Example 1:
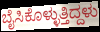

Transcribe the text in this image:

ಬೈಸಿಕೊಳ್ಳುತ್ತಿದ್ದಳು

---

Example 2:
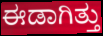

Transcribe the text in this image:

ಈಡಾಗಿತ್ತು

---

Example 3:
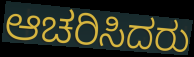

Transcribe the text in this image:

ಆಚರಿಸಿದರು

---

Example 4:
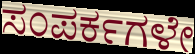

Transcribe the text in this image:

ಸಂಪರ್ಕಗಳೇ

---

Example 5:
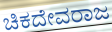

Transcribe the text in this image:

ಚಿಕದೇವರಾಜ